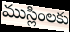
ముస్లింలకు